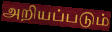
அறியப்படும்